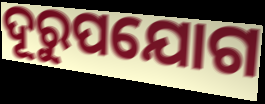
ଦୂରୁପଯୋଗ